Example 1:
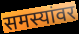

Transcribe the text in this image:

समस्यांवर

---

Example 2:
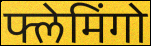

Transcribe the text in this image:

फ्लेमिंगो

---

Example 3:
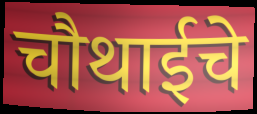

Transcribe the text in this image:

चौथाईचे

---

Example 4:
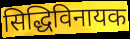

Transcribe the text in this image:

सिद्धिविनायक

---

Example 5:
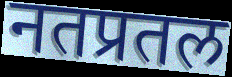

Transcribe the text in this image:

नतप्रतल